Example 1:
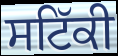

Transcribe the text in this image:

ਸਟਿੱਕੀ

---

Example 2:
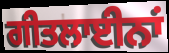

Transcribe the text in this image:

ਗੀਤਲਾਈਨਾਂ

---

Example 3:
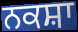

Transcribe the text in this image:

ਨਕਸ਼ਾ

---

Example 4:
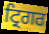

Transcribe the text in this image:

ਟ੍ਰਿਗਰ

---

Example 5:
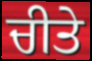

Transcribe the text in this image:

ਚੀਤੇ